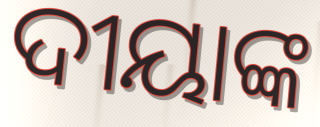
ଦୀୟାଙ୍କ